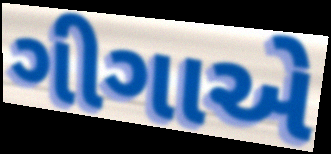
ગીગાએ